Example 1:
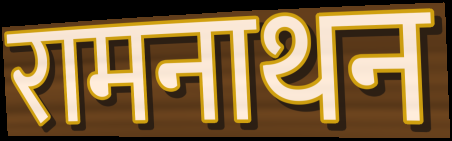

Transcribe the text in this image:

रामनाथन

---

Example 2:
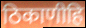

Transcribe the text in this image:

ठिकाणीहि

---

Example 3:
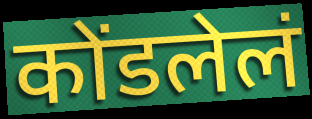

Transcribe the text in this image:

कोंडलेलं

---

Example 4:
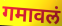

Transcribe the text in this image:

गमावलं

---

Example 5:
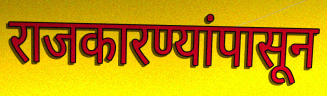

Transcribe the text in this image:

राजकारण्यांपासून